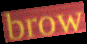
brow